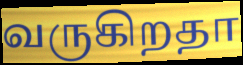
வருகிறதா